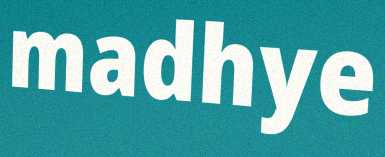
madhye